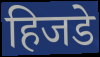
हिजडे